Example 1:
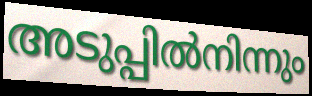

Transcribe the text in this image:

അടുപ്പിൽനിന്നും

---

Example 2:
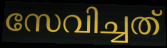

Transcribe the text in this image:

സേവിച്ചത്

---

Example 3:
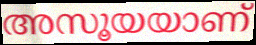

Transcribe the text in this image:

അസൂയയാണ്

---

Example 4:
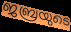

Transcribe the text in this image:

ജബ്രയുടെ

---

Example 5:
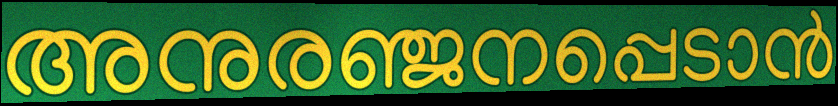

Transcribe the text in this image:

അനുരഞ്ജനപ്പെടാൻ